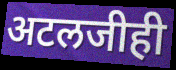
अटलजीही